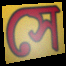
সে